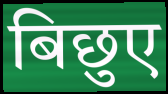
बिछुए